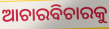
ଆଚାରବିଚାରକୁ